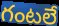
గంటలే